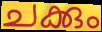
ചക്കും